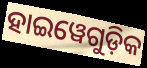
ହାଇୱେଗୁଡ଼ିକ